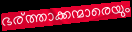
ഭര്ത്താക്കന്മാരെയും